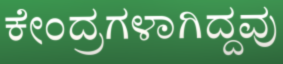
ಕೇಂದ್ರಗಳಾಗಿದ್ದವು